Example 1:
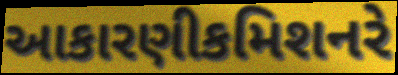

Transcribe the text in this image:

આકારણીકમિશનરે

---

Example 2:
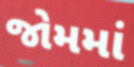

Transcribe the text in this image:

જોમમાં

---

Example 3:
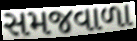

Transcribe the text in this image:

સમજવાળા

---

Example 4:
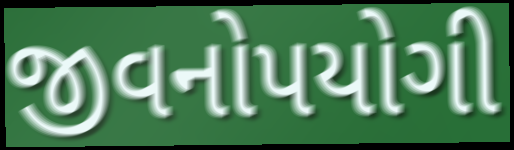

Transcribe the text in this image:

જીવનોપયોગી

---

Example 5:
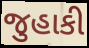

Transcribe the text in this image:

જુહાકી